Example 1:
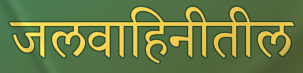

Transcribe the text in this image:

जलवाहिनीतील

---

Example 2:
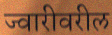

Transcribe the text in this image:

ज्वारीवरील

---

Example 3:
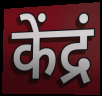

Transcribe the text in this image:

केंद्रं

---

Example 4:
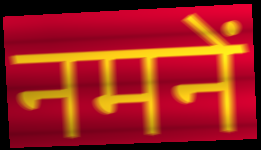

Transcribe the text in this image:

नमनें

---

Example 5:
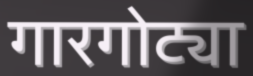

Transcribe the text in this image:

गारगोट्या